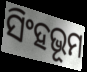
ସିଂହଭୂମ